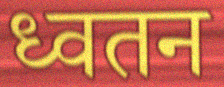
ध्वतन